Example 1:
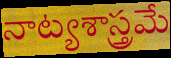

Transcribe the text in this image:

నాట్యశాస్త్రమే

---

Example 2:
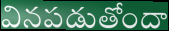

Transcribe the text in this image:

వినపడుతోందా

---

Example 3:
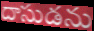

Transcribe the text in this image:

దాసుడను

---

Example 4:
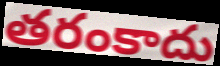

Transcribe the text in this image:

తరంకాదు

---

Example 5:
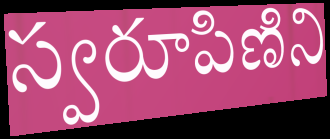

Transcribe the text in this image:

స్వరూపిణిని